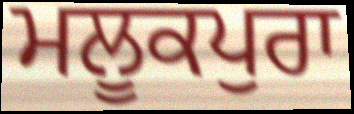
ਮਲੂਕਪੁਰਾ